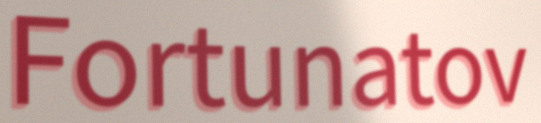
Fortunatov